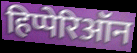
हिप्पेरिऑन